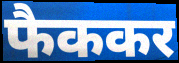
फैककर